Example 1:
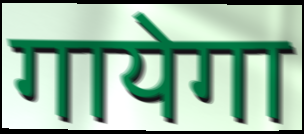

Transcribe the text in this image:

गायेगा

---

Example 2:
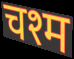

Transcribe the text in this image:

चश्म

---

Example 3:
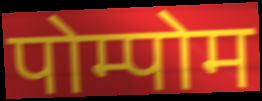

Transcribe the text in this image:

पोम्पोम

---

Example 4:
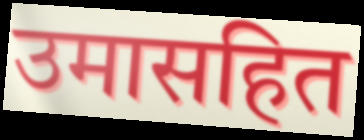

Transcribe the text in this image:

उमासहित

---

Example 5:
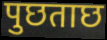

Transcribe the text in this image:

पुछताछ